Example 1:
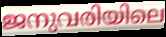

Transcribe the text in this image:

ജനുവരിയിലെ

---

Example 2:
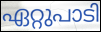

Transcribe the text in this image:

ഏറ്റുപാടി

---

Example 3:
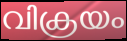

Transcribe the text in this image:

വിക്രയം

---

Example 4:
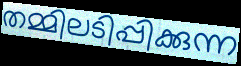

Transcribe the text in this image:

തമ്മിലടിപ്പിക്കുന്ന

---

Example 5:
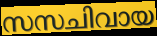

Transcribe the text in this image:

സസചിവായ